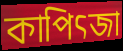
কাপিৎজা